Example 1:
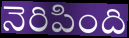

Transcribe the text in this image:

నెరిపింది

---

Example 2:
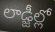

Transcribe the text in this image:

లాడ్జీల్లో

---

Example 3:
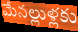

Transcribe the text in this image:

మేనల్లుళ్లకు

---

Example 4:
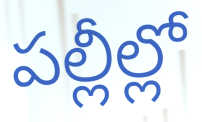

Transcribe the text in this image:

పల్లీల్లో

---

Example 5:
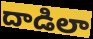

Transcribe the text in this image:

దాడిలా